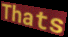
Thats